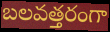
బలవత్తరంగా